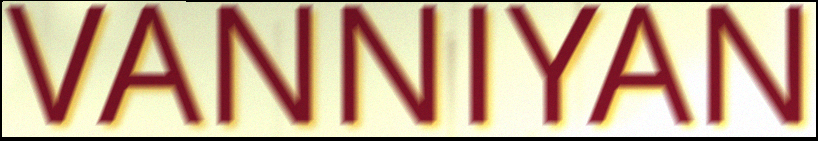
VANNIYAN